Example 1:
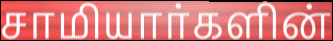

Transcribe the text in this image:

சாமியார்களின்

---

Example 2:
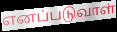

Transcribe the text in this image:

எனப்படுவாள்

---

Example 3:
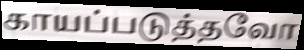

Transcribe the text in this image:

காயப்படுத்தவோ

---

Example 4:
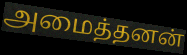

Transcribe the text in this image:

அமைத்தனன்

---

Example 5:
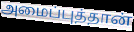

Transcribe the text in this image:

அமைப்புத்தான்